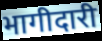
भागीदारी